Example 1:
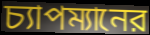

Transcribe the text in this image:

চ্যাপম্যানের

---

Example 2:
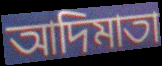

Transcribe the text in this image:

আদিমাতা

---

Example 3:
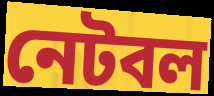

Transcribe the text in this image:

নেটবল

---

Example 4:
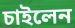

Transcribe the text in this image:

চাইলেন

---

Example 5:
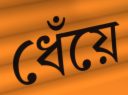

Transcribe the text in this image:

ধেঁয়ে